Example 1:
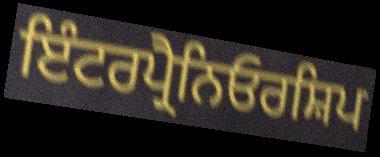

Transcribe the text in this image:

ਇੰਟਰਪ੍ਰੈਨਿਓਰਸ਼ਿਪ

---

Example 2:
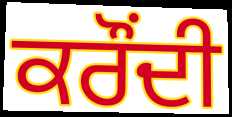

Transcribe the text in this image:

ਕਰੌਂਦੀ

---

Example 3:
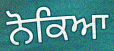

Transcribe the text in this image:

ਨੋਕਿਆ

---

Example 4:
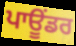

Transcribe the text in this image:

ਪਾਊਂਡਰ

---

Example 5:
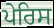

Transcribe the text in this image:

ਪੇਰਿਸ